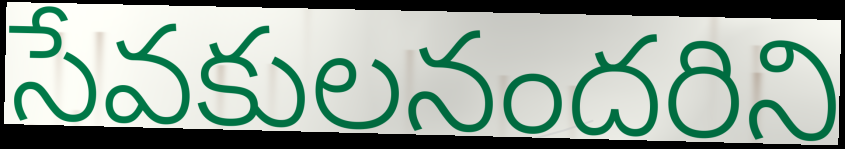
సేవకులనందరిని